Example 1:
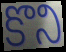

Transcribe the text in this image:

కొని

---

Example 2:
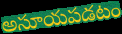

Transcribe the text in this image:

అసూయపడటం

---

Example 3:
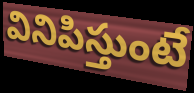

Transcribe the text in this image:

వినిపిస్తుంటే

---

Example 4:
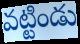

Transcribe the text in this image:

వట్టిండు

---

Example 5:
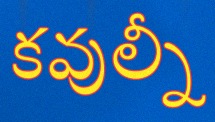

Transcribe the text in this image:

కవుల్నీ